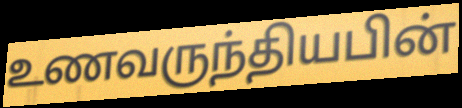
உணவருந்தியபின்